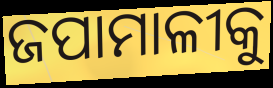
ଜପାମାଳୀକୁ